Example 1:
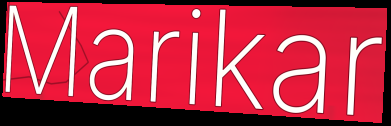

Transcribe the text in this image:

Marikar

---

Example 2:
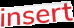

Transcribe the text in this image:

insert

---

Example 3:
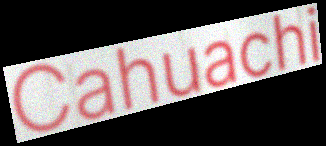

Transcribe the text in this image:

Cahuachi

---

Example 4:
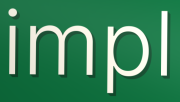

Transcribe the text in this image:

impl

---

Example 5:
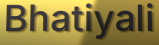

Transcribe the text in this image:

Bhatiyali